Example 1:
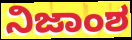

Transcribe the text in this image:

ನಿಜಾಂಶ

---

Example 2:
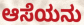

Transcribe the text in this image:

ಆಸೆಯನು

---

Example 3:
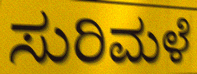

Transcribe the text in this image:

ಸುರಿಮಳೆ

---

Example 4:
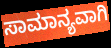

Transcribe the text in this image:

ಸಾಮಾನ್ಯವಾಗಿ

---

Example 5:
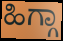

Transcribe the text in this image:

ಹಿಗ್ಗಾ